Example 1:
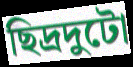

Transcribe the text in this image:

ছিদ্রদুটো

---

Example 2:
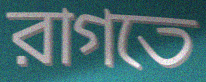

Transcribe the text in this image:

রাগতে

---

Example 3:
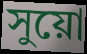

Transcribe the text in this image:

সুয়ো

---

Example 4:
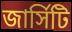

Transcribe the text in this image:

জার্সিটি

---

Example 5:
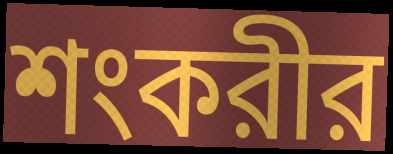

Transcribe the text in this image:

শংকরীর